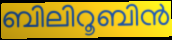
ബിലിറൂബിൻ